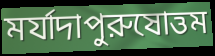
মর্যাদাপুরুষোত্তম